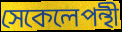
সেকেলেপন্থী